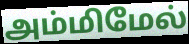
அம்மிமேல்